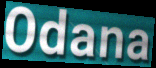
Odana